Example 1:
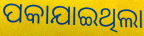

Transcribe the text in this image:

ପକାଯାଇଥିଲା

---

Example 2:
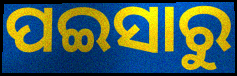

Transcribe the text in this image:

ପଇସାରୁ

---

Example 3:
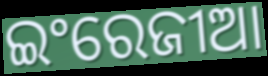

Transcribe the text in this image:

ଇଂରେଜୀଆ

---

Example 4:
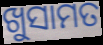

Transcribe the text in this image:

ଖୁସାମତ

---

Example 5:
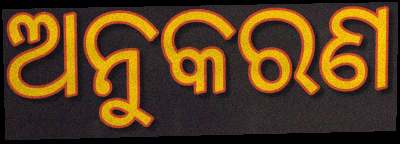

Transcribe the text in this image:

ଅନୁକରଣ